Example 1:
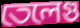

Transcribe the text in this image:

তেলেগু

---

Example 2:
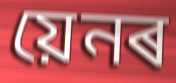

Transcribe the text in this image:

য়েনৰ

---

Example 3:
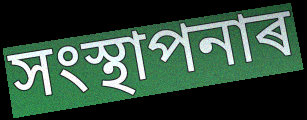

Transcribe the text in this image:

সংস্থাপনাৰ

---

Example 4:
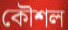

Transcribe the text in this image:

কৌশল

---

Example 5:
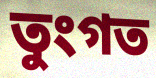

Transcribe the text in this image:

তুংগত